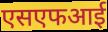
एसएफआई